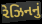
રેઝિનનું